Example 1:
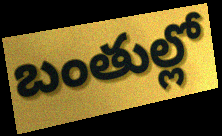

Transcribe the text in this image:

బంతుల్లో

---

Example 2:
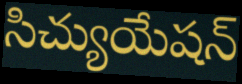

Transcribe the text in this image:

సిచ్యుయేషన్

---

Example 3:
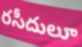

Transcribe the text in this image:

రసీదులూ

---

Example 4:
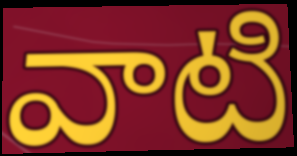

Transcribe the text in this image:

వాటి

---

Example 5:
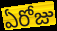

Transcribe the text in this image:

ఏరోజు